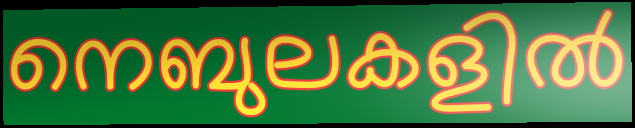
നെബുലകളിൽ